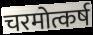
चरमोत्कर्ष